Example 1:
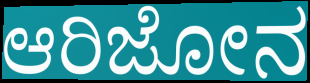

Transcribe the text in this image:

ಆರಿಜೋನ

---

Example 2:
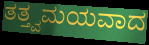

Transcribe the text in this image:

ತತ್ತ್ವಮಯವಾದ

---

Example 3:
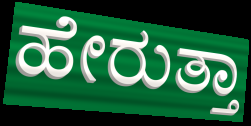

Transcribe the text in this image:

ಹೇರುತ್ತಾ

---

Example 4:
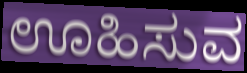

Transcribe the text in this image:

ಊಹಿಸುವ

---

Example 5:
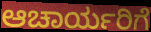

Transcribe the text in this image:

ಆಚಾರ್ಯರಿಗೆ